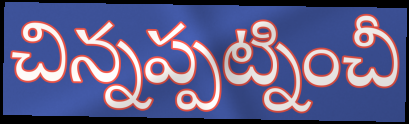
చిన్నప్పట్నించీ